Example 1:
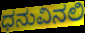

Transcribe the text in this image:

ಧನುವಿನಲಿ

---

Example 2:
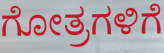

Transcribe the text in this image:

ಗೋತ್ರಗಳಿಗೆ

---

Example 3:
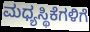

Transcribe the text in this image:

ಮಧ್ಯಸ್ಥಿಕೆಗಳಿಗೆ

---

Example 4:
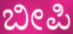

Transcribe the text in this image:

ಬೀಪಿ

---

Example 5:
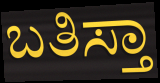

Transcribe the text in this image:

ಬತಿಸ್ತಾ